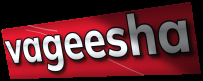
vageesha